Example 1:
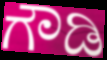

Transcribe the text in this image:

ಗೌಡಿ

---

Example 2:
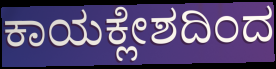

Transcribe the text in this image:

ಕಾಯಕ್ಲೇಶದಿಂದ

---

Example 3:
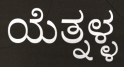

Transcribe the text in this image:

ಯೆತ್ನಳ್ಳ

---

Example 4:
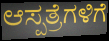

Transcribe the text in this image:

ಆಸ್ಪತ್ರೆಗಳಿಗೆ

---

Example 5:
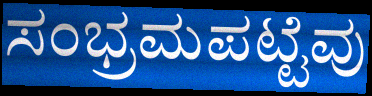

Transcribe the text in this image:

ಸಂಭ್ರಮಪಟ್ಟೆವು